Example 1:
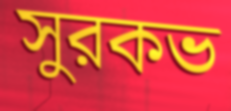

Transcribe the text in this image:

সুরকভ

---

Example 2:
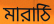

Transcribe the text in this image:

মারাঠি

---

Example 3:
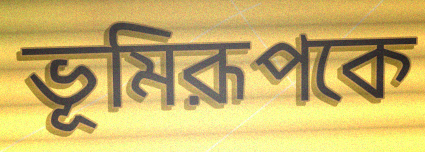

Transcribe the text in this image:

ভূমিরূপকে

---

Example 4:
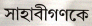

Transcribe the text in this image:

সাহাবীগণকে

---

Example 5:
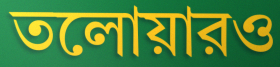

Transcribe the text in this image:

তলোয়ারও